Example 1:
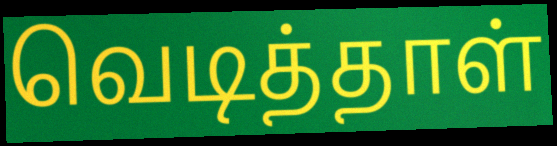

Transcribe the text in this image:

வெடித்தாள்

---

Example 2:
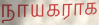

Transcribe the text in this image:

நாயகராக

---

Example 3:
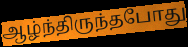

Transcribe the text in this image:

ஆழ்ந்திருந்தபோது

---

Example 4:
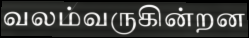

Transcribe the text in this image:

வலம்வருகின்றன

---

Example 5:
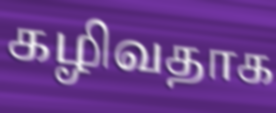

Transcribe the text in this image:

கழிவதாக